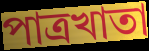
পাত্রখাতা